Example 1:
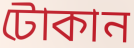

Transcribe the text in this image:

টোকান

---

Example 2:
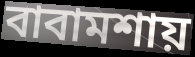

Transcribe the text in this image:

বাবামশায়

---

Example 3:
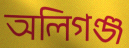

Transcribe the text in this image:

অলিগঞ্জ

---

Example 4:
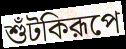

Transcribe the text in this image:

শুঁটকিরূপে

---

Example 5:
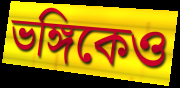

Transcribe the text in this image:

ভঙ্গিকেও